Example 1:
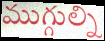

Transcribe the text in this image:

ముగ్గుల్ని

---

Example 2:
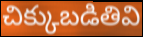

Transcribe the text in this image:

చిక్కుబడితివి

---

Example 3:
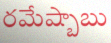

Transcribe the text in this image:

రమేష్బాబు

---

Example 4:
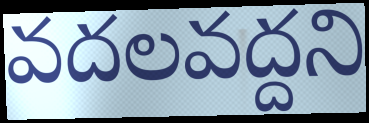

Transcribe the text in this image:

వదలవద్దని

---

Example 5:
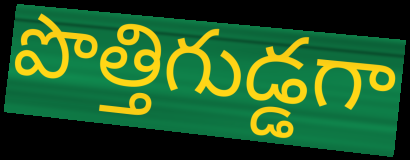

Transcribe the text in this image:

పొత్తిగుడ్డగా